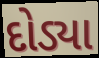
દોડ્યા